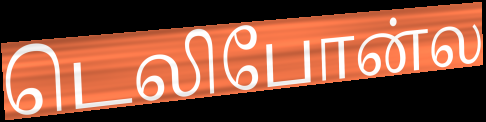
டெலிபோன்ல